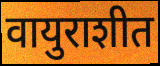
वायुराशीत